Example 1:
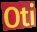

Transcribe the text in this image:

Oti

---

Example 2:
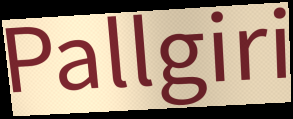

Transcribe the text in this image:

Pallgiri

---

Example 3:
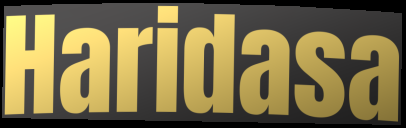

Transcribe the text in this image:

Haridasa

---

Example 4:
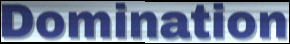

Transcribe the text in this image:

Domination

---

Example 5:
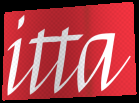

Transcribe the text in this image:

itta